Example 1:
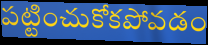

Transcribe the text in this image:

పట్టించుకోకపోవడం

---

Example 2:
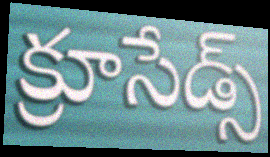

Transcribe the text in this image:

క్రూసేడ్స్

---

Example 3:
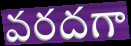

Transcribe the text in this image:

వరదగా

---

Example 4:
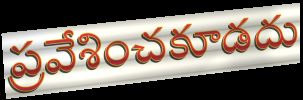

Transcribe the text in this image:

ప్రవేశించకూడదు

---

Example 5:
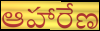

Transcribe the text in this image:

ఆహారేణ